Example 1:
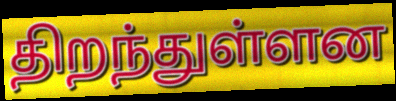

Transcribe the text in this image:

திறந்துள்ளன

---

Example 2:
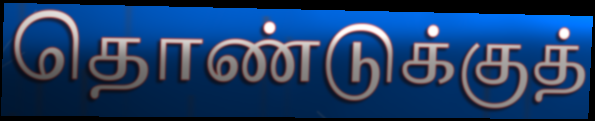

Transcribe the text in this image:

தொண்டுக்குத்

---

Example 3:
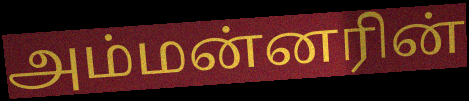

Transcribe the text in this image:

அம்மன்னரின்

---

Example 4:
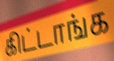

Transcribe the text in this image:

கிட்டாங்க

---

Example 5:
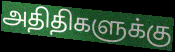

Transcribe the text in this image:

அதிதிகளுக்கு